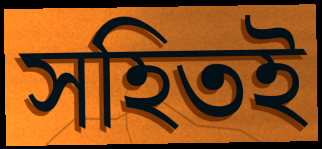
সহিতই